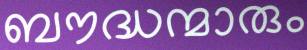
ബൗദ്ധന്മാരും